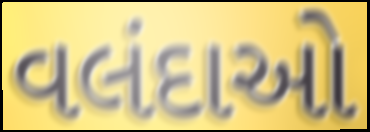
વલંદાઓ